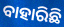
ବାହାରିଛି